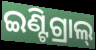
ଇଣ୍ଟିଗ୍ରାଲ୍